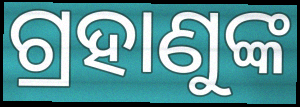
ଗ୍ରହାଣୁଙ୍କ